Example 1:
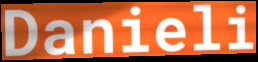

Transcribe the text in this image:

Danieli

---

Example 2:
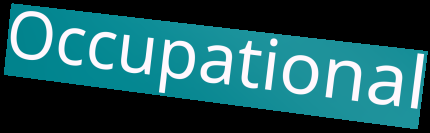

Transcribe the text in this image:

Occupational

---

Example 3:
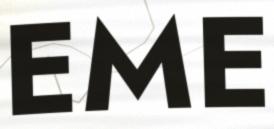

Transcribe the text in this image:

EME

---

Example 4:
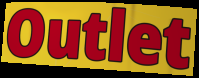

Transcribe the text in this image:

Outlet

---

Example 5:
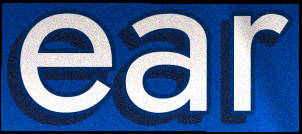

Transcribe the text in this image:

ear